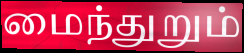
மைந்துறும்